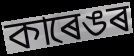
কাৰেঙৰ